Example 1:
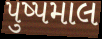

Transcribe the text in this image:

પુષ્પમાલ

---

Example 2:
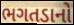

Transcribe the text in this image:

ભગતડાનો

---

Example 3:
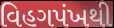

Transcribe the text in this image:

વિહગપંખથી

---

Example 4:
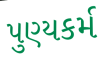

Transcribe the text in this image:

પુણ્યકર્મ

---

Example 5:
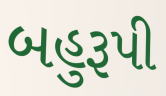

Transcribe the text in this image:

બહુરૂપી